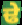
ਢੇ